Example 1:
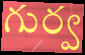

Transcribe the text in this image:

గుర్వ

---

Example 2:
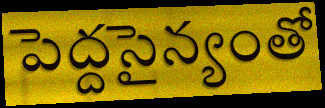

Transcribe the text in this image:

పెద్దసైన్యంతో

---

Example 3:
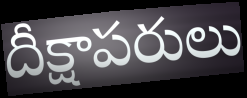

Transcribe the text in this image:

దీక్షాపరులు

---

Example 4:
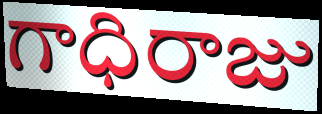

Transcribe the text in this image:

గాధిరాజు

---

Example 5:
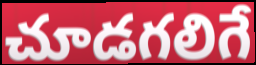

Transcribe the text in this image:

చూడగలిగే